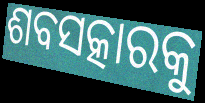
ଶବସତ୍କାରକୁ